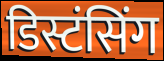
डिस्टंसिंग